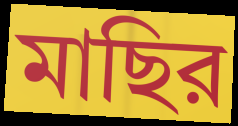
মাছির